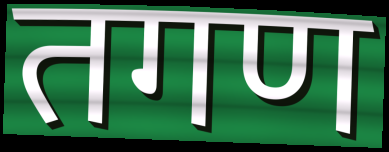
तगण